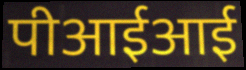
पीआईआई